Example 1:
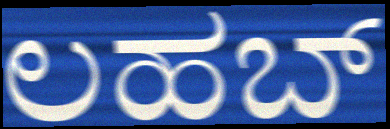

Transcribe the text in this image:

ಲಹಬ್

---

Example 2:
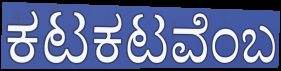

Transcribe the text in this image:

ಕಟಕಟವೆಂಬ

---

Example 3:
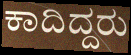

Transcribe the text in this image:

ಕಾದಿದ್ದರು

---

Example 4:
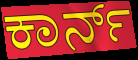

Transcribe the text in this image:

ಕಾರ್ನ್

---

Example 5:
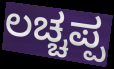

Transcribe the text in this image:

ಲಚ್ಚಪ್ಪ